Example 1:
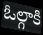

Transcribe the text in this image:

ఓల్గాకి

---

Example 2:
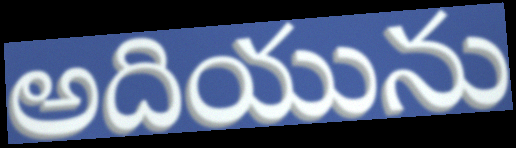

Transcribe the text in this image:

అదియును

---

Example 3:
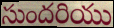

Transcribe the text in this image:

సుందరియు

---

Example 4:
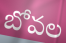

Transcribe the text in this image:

బోవల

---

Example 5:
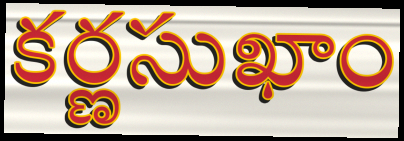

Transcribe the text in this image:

కర్ణసుఖాం